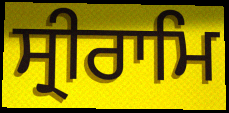
ਸ੍ਰੀਰਾਮਿ